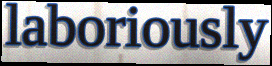
laboriously